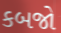
કબજો